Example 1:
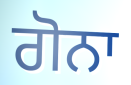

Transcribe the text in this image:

ਗੋਨਾ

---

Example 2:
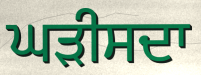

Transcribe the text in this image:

ਘੜੀਸਦਾ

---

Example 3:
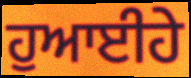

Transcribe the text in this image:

ਹੁਆਈਹੇ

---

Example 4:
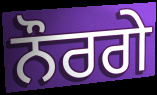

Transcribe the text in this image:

ਨੌਰਗੇ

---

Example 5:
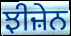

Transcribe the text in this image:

ਝੀਜ਼ੇਨ